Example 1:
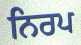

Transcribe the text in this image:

ਨਿਰਪ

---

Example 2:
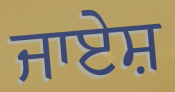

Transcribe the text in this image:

ਜਾਏਸ਼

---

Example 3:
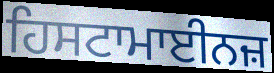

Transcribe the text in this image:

ਹਿਸਟਾਮਾਈਨਜ਼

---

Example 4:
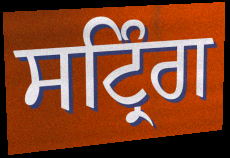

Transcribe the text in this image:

ਸਟ੍ਰਿੰਗ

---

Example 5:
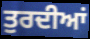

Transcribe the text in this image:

ਤੁਰਦੀਆਂ